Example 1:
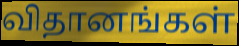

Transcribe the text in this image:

விதானங்கள்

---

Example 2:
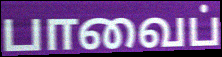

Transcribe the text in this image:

பாவைப்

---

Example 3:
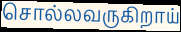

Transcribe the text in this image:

சொல்லவருகிறாய்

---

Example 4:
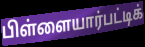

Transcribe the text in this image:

பிள்ளையார்பட்டிக்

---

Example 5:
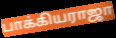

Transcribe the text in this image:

பாக்கியராஜா